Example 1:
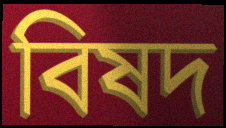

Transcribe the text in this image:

বিষদ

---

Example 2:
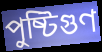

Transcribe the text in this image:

পুষ্টিগুণ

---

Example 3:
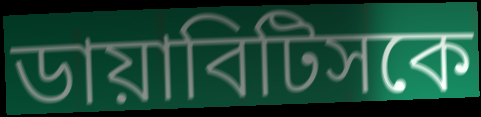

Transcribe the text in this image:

ডায়াবিটিসকে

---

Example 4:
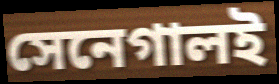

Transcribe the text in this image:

সেনেগালই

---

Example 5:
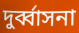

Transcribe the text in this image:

দুর্ব্বাসনা